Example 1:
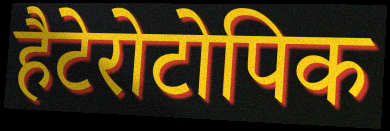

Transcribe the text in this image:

हैटेरोटोपिक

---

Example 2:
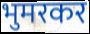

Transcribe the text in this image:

भुमरकर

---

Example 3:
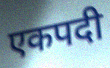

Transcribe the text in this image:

एकपदी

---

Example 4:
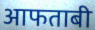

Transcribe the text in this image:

आफताबी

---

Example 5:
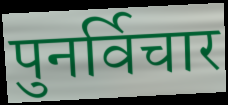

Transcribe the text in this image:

पुनर्विचार